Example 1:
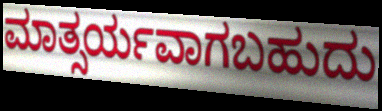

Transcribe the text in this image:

ಮಾತ್ಸರ್ಯವಾಗಬಹುದು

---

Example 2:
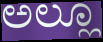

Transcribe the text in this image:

ಅಲ್ಲೂ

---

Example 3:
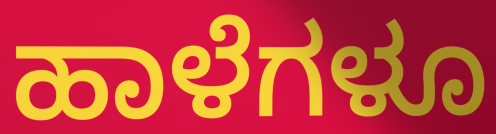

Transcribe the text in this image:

ಹಾಳೆಗಳೂ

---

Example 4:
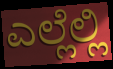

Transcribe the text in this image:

ಎಲ್ಲೆಲ್ಲಿ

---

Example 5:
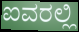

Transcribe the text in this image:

ಐವರಲ್ಲಿ